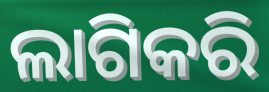
ଲାଗିକରି